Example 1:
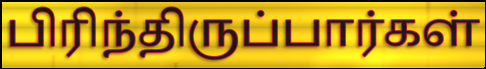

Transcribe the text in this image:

பிரிந்திருப்பார்கள்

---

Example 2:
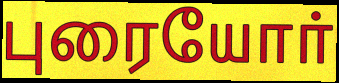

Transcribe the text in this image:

புரையோர்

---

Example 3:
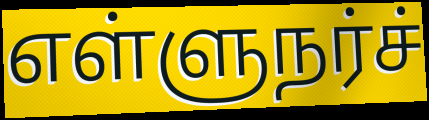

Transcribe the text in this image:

எள்ளுநர்ச்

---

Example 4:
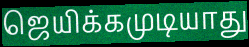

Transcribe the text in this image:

ஜெயிக்கமுடியாது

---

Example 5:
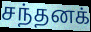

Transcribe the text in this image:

சந்தனக்